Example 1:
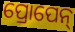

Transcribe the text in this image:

ପ୍ରୋପେନ୍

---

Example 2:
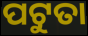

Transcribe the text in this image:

ପଟୁତା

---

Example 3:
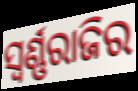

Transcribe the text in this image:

ସ୍ଵର୍ଣ୍ଣରାଜିର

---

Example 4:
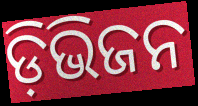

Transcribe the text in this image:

ଡ଼ିଭିଜନ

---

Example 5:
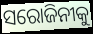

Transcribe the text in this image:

ସରୋଜିନୀକୁ